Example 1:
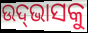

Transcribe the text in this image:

ଉଦ୍‌ଭାସକୁ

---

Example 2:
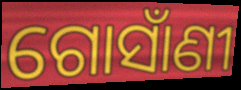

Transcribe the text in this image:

ଗୋସାଁଣୀ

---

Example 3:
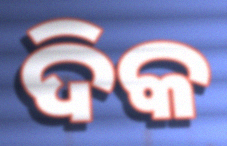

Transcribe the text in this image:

ଦିକ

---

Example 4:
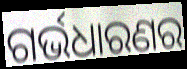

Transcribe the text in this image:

ଗର୍ଭଧାରଣର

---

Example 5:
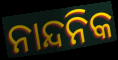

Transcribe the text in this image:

ନାନ୍ଦନିକ